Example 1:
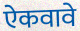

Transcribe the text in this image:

ऐकवावे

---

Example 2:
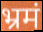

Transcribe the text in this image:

भ्रमं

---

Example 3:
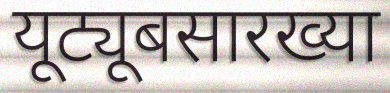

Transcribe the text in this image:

यूट्यूबसारख्या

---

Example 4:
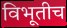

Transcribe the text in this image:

विभूतीच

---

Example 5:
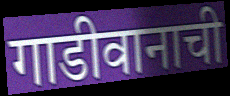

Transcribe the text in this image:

गाडीवानाची